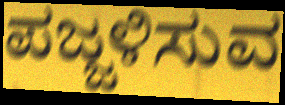
ಪಜ್ಜಳಿಸುವ